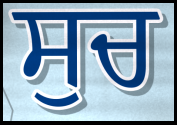
ਸੁਚ